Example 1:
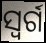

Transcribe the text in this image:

ସ୍ବର୍ଗ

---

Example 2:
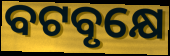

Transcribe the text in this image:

ବଟବୃକ୍ଷେ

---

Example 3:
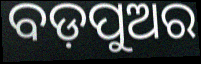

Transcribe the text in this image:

ବଡ଼ପୁଅର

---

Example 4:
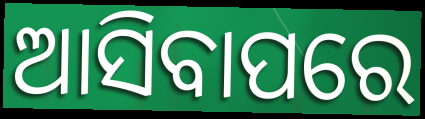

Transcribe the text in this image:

ଆସିବାପରେ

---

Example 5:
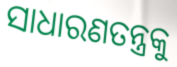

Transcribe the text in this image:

ସାଧାରଣତନ୍ତ୍ରକୁ